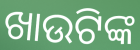
ଖାଉଟିଙ୍କ